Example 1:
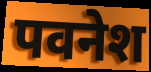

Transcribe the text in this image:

पवनेश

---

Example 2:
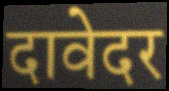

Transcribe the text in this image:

दावेदर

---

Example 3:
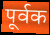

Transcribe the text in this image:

पूर्वक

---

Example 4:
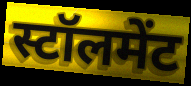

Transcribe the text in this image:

स्टॉलमेंट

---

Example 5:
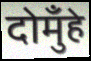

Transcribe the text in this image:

दोमुँहे